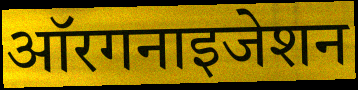
ऑरगनाइजेशन